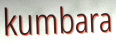
kumbara